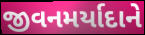
જીવનમર્યાદાને